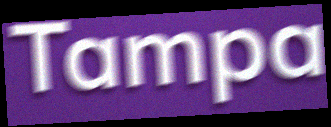
Tampa